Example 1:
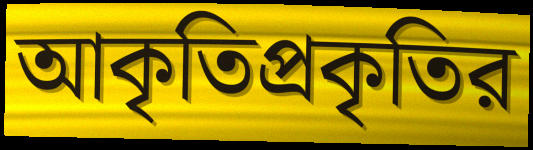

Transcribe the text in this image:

আকৃতিপ্রকৃতির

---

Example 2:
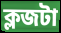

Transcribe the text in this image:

ক্লজটা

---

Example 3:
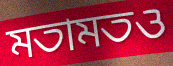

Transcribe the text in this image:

মতামতও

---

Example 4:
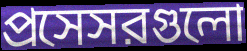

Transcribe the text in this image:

প্রসেসরগুলো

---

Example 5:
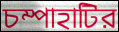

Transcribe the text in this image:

চম্পাহাটির